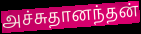
அச்சுதானந்தன்